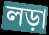
লড়া